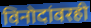
विनोदांवरही